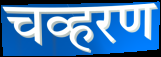
चव्हरण